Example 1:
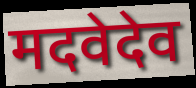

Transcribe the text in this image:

मदवेदेव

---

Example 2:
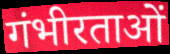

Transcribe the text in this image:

गंभीरताओं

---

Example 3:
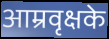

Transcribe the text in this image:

आम्रवृक्षके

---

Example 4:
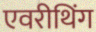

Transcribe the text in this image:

एवरीथिंग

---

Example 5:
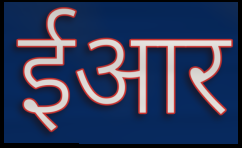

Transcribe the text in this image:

ईआर